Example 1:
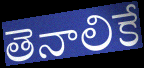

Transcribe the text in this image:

తెనాలికే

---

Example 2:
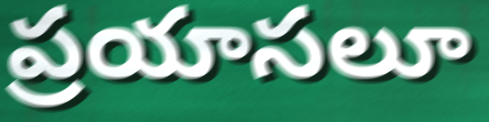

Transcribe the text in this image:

ప్రయాసలూ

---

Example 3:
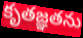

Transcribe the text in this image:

కృతజ్ఞతను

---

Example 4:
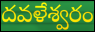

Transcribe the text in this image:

దవళేశ్వరం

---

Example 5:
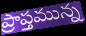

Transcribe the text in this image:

ప్రాప్తమున్న